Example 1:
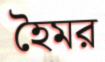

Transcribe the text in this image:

হৈমর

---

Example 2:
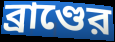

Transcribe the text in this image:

ব্রাণ্ডের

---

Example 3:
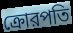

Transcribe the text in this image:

ক্রোরপতি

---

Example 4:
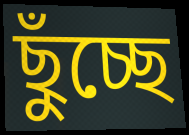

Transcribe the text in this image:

ছুঁচ্ছে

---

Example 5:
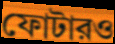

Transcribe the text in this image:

ফোটারও